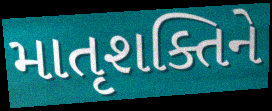
માતૃશક્તિને